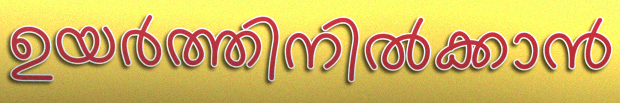
ഉയർത്തിനിൽക്കാൻ